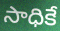
సాధికే